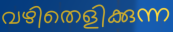
വഴിതെളിക്കുന്ന